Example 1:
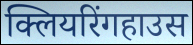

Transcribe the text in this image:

क्लियरिंगहाउस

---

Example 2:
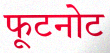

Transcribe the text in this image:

फूटनोट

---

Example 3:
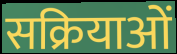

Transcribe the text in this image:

सक्रियाओं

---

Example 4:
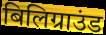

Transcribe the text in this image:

बिलिग्राउंड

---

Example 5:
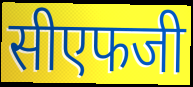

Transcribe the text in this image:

सीएफजी